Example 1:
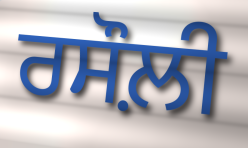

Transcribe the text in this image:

ਰਸੌਲ਼ੀ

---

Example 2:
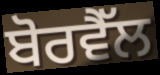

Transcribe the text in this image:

ਬੋਰਵੈੱਲ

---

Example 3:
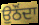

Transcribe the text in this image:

ਉਠੌਂਦਾ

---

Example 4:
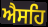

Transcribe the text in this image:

ਐਸਹਿ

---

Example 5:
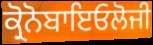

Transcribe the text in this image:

ਕ੍ਰੋਨੋਬਾਇਓਲੋਜੀ